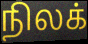
நிலக்